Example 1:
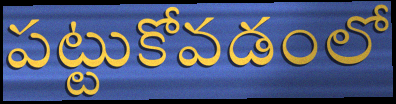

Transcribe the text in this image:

పట్టుకోవడంలో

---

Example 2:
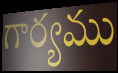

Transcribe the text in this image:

గార్యము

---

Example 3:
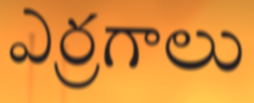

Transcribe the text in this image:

ఎర్రగాలు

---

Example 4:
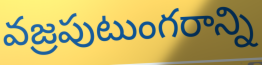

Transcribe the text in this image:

వజ్రపుటుంగరాన్ని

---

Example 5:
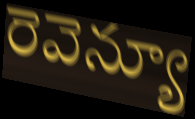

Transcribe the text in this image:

రెవెన్యూ